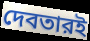
দেবতারই